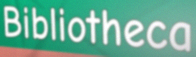
Bibliotheca